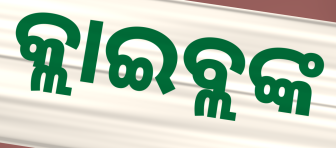
କ୍ଲାଇବ୍ଲଙ୍କ